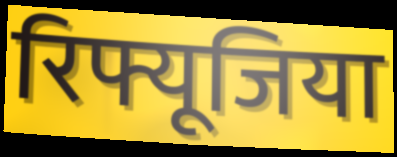
रिफ्यूजिया